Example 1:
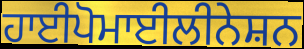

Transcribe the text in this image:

ਹਾਈਪੋਮਾਈਲੀਨੇਸ਼ਨ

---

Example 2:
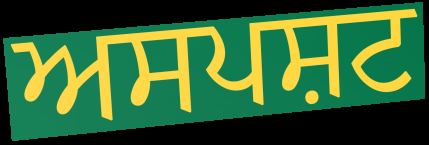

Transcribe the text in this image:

ਅਸਪਸ਼ਟ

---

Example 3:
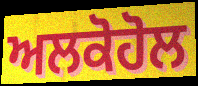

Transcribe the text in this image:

ਅਲਕੋਹੋਲ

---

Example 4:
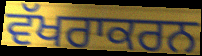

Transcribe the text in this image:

ਵੱਖਰਾਕਰਨ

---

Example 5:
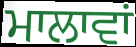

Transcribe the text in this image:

ਮਾਲਾਵਾਂ